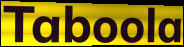
Taboola